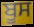
ਬੂਸ